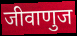
जीवाणुज